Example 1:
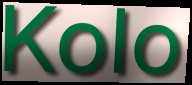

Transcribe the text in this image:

Kolo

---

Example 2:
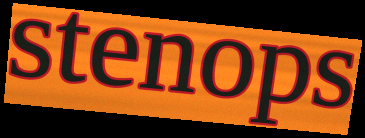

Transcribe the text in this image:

stenops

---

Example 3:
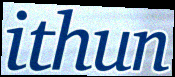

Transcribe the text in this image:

ithun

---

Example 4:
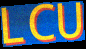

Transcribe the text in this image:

LCU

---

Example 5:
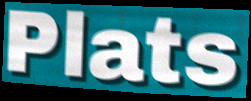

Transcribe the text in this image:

Plats